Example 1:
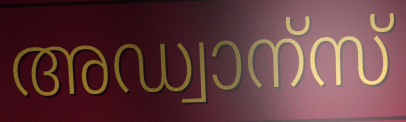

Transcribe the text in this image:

അഡ്വാന്സ്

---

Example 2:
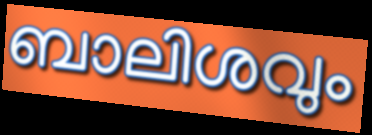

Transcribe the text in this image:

ബാലിശവും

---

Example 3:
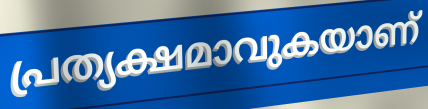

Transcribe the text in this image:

പ്രത്യക്ഷമാവുകയാണ്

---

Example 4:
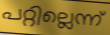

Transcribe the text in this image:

പറ്റില്ലെന്ന്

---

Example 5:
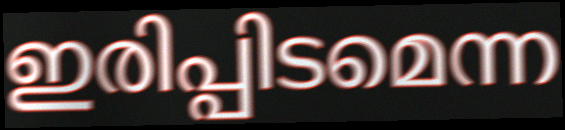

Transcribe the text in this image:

ഇരിപ്പിടമെന്ന